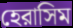
হেরাসিম